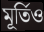
মূৰ্তিও